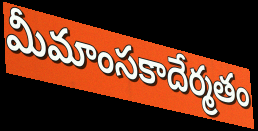
మీమాంసకాదేర్మతం